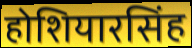
होशियारसिंह